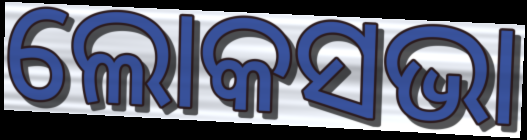
ଲୋକସଭା